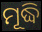
ମୂଦ୍ଧି